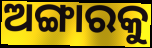
ଅଙ୍ଗାରକୁ